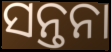
ସନ୍ତନା